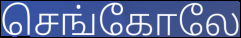
செங்கோலே